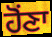
ਹੋਂਣਾ